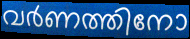
വർണത്തിനോ